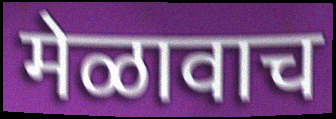
मेळावाच